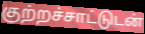
குற்றச்சாட்டுடன்